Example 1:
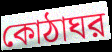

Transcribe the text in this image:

কোঠাঘর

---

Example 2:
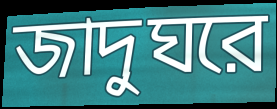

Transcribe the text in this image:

জাদুঘরে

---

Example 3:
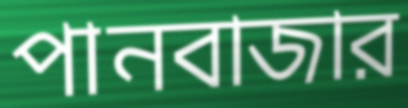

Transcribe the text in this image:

পানবাজার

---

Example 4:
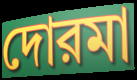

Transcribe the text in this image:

দোরমা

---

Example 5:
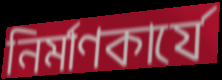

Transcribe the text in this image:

নির্মাণকার্যে